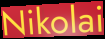
Nikolai